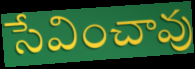
సేవించావు